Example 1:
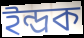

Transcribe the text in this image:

ইন্দ্ৰক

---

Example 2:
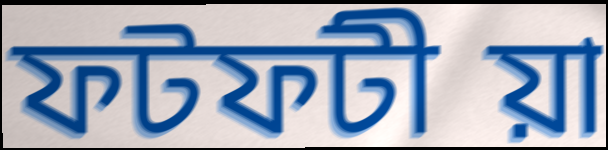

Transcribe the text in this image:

ফটফটীয়া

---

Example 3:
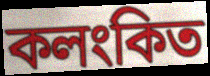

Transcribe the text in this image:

কলংকিত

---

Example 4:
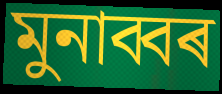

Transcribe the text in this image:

মুনাব্বৰ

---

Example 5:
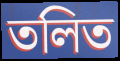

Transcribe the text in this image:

তলিত